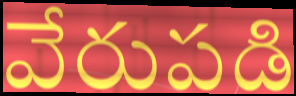
వేరుపడి